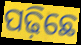
ପଢ଼ିଛେ